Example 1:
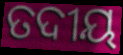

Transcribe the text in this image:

ତଦୀୟ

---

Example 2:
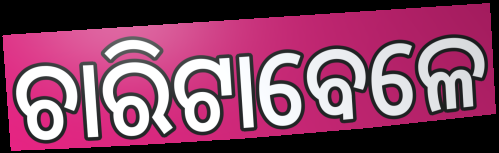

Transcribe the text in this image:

ଚାରିଟାବେଳେ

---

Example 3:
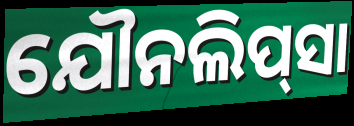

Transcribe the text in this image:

ଯୌନଲିପ୍‌ସା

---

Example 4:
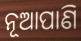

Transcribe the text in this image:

ନୂଆପାଣି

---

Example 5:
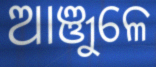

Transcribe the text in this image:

ଆଞ୍ଜୁଳେ